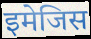
इमेजिस